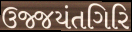
ઉજ્જયંતગિરિ